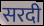
सरदी